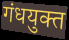
गंधयुक्‍त